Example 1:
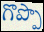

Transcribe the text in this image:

గొప్పొ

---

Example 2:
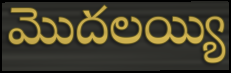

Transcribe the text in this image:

మొదలయ్యి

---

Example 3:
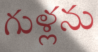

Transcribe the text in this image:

గుళ్లను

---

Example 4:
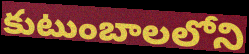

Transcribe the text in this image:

కుటుంబాలలోని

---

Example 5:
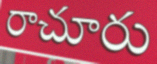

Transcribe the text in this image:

రాచూరు